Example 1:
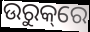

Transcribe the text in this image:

ଉରୁକ୍‌ରେ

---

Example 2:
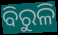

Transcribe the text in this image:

ବିରୁଳି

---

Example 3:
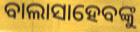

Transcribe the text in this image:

ବାଲାସାହେବଙ୍କୁ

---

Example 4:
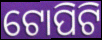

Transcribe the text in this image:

ଟୋପିଟି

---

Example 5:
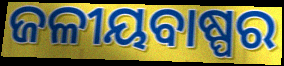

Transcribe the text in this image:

ଜଳୀୟବାଷ୍ପର